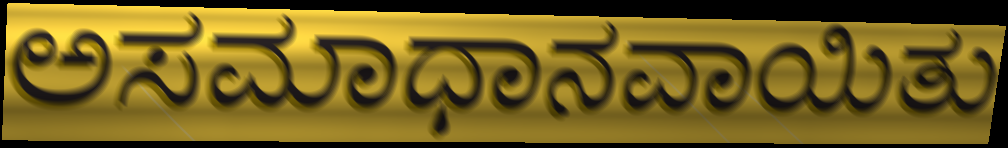
ಅಸಮಾಧಾನವಾಯಿತು